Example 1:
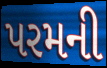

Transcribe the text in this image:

પરમની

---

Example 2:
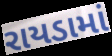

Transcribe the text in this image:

રાયડામાં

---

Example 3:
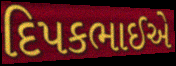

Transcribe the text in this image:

દિપકભાઈએ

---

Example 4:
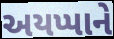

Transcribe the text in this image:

અયપ્પાને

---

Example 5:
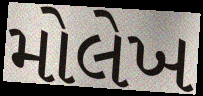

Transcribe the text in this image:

મોલેખ